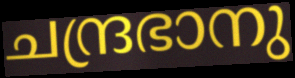
ചന്ദ്രഭാനു